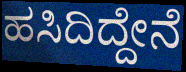
ಹಸಿದಿದ್ದೇನೆ